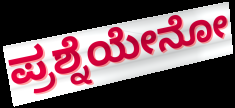
ಪ್ರಶ್ನೆಯೇನೋ